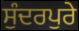
ਸੁੰਦਰਪੁਰੇ